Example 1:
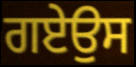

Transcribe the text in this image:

ਗਏਉਸ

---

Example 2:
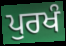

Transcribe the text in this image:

ਪੁਰਖੰ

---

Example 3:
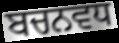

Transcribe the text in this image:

ਬਚਨਵਧ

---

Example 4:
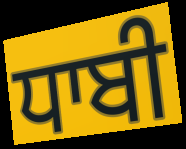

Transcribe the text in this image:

ਧਾਬੀ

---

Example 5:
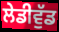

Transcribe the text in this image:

ਲੇਡੀਵੁੱਡ